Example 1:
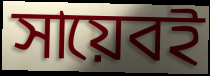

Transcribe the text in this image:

সায়েবই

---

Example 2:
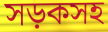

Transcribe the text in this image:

সড়কসহ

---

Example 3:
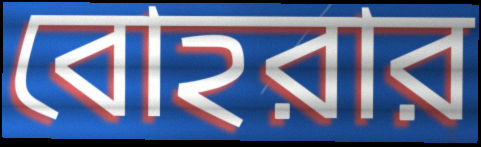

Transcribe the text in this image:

বোহরার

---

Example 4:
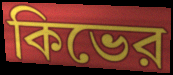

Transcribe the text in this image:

কিভের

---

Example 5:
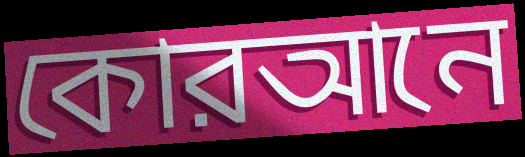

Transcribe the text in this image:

কোরআনে